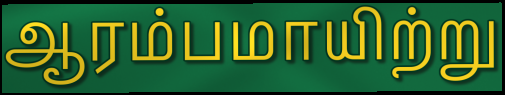
ஆரம்பமாயிற்று